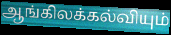
ஆங்கிலக்கல்வியும்